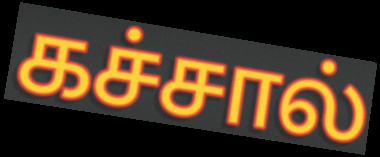
கச்சால்